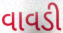
વાવડી